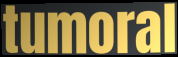
tumoral